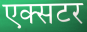
एक्सटर